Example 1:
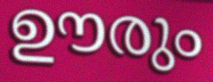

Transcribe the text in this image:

ഊരും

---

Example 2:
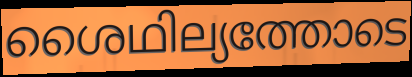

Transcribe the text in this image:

ശൈഥില്യത്തോടെ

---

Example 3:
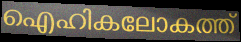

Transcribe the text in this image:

ഐഹികലോകത്ത്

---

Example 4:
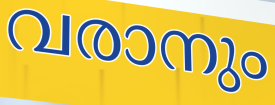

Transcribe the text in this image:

വരാനും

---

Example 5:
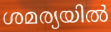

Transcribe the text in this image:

ശമര്യയിൽ